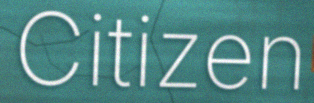
Citizen